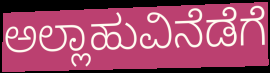
ಅಲ್ಲಾಹುವಿನೆಡೆಗೆ